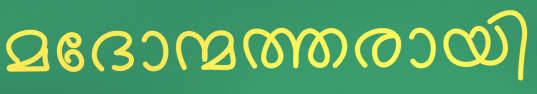
മദോന്മത്തരായി